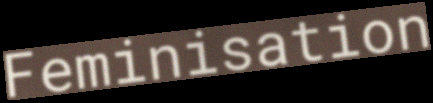
Feminisation